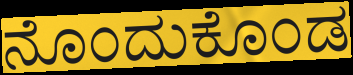
ನೊಂದುಕೊಂಡ